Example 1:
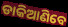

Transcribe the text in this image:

ଡାକିଆଣିବେ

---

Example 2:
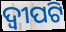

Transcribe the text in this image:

ଦ୍ୱୀପଟି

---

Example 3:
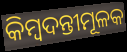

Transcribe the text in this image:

କିମ୍ବଦନ୍ତୀମୂଳକ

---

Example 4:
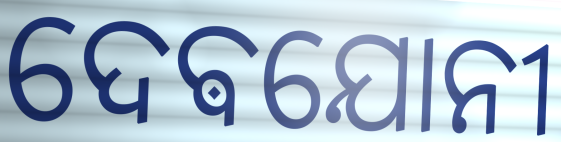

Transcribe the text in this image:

ଦେଵଯୋନୀ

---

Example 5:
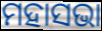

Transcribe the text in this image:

ମହାସଭା